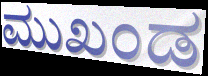
ಮುಖಂಡ